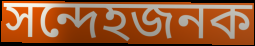
সন্দেহজনক